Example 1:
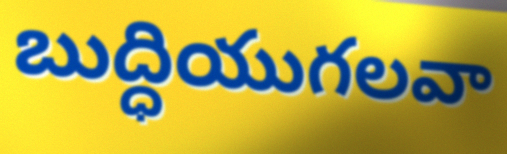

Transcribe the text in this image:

బుద్ధియుగలవా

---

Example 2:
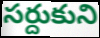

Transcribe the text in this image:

సర్దుకుని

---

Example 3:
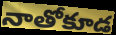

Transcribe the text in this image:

నాతోకూడ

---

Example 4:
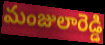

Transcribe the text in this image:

మంజులారెడ్డి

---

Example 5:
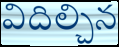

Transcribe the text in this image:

విదిల్చిన